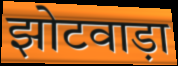
झोटवाड़ा